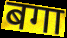
बगा